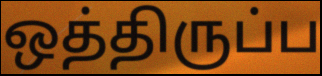
ஒத்திருப்ப